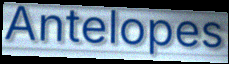
Antelopes